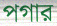
পগার